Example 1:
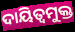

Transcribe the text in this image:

ଦାୟିତ୍ବମୁକ୍ତ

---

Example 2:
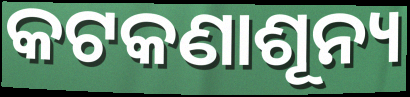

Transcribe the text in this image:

କଟକଣାଶୂନ୍ୟ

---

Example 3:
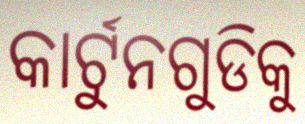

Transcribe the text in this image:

କାର୍ଟୁନଗୁଡିକୁ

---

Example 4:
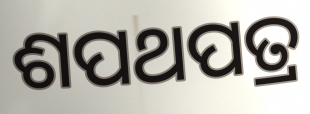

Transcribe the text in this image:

ଶପଥପତ୍ର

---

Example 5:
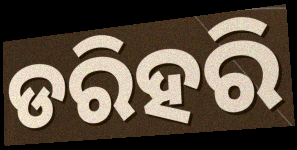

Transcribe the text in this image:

ଡରିହରି